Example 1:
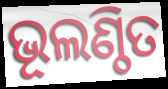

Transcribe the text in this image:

ଭୂଲଣ୍ଠିତ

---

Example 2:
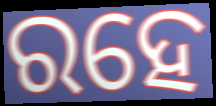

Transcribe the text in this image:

ରହେ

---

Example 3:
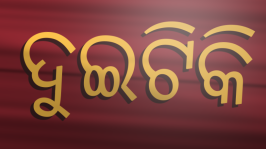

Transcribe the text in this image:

ଦୁଇଟିକି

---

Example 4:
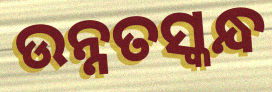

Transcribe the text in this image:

ଉନ୍ନତସ୍କନ୍ଧ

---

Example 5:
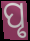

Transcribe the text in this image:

ପୃ